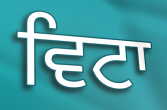
ਵਿਟਾ